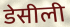
डेसीली